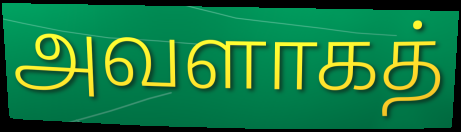
அவளாகத்